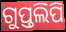
ଗୁପ୍ତଲିପି